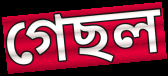
গেছল